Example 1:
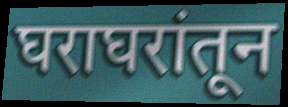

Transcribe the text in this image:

घराघरांतून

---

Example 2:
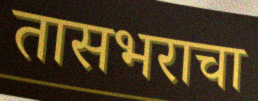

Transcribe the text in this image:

तासभराचा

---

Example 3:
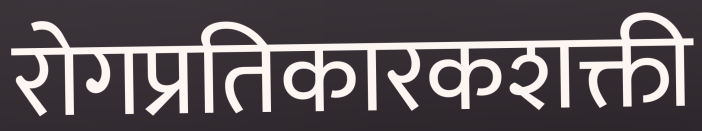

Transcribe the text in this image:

रोगप्रतिकारकशक्ती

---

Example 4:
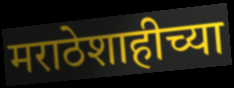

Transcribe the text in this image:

मराठेशाहीच्या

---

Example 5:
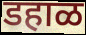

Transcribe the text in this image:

डहाळ